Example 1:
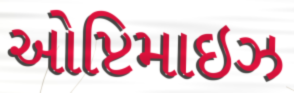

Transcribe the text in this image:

ઓપ્ટિમાઇઝ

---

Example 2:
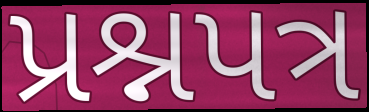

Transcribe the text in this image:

પ્રશ્નપત્ર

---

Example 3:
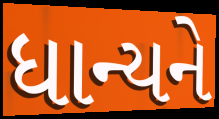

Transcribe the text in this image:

ધાન્યને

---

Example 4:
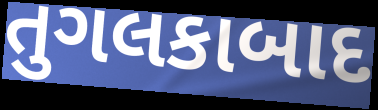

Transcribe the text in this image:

તુગલકાબાદ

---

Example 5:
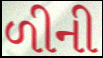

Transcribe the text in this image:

ળીની